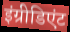
इंग्रीडिएंट